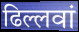
ढिल्लवां